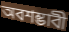
অবশম্ভাবী